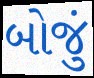
બોજું